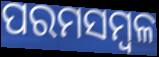
ପରମସମ୍ବଳ